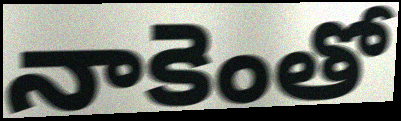
నాకెంతో